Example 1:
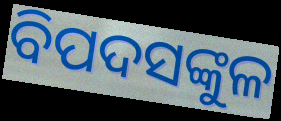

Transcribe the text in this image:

ବିପଦସଙ୍କୁଳ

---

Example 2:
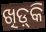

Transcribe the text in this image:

ଖିଡ଼୍‌କି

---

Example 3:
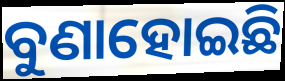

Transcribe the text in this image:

ବୁଣାହୋଇଛି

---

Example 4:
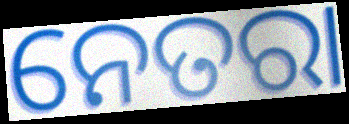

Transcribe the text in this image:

ନେତରା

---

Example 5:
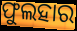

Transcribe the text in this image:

ଫୁଲହାର